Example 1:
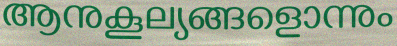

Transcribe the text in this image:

ആനുകൂല്യങ്ങളൊന്നും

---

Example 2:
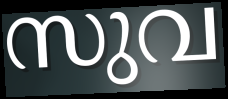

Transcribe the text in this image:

സുവ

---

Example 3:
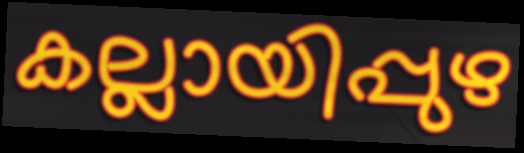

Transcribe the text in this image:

കല്ലായിപ്പുഴ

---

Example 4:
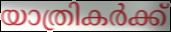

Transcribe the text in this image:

യാത്രികർക്ക്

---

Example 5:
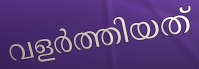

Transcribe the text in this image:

വളർത്തിയത്